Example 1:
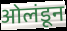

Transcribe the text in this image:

ओलंडून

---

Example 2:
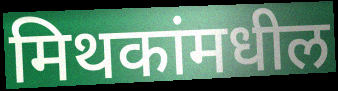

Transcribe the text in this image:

मिथकांमधील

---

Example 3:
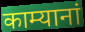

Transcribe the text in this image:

काम्यानां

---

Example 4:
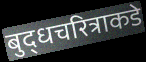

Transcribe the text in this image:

बुद्धचरित्राकडे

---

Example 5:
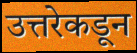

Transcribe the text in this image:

उत्तरेकडून